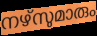
നഴ്സുമാരും